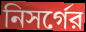
নিসর্গের